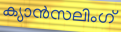
ക്യാൻസലിംഗ്